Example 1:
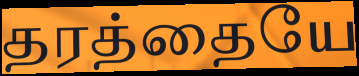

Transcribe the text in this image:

தரத்தையே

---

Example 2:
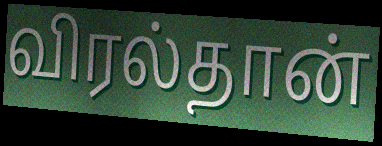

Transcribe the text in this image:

விரல்தான்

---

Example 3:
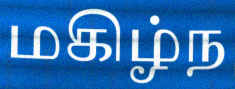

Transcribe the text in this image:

மகிழ்ந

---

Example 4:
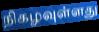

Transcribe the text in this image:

நிகழவுள்ளது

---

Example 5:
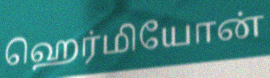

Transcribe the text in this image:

ஹெர்மியோன்